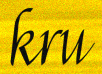
kru